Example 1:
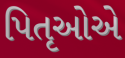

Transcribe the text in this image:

પિતૃઓએ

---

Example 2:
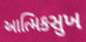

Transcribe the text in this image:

આત્મિકસુખ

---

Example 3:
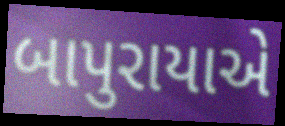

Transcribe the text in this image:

બાપુરાયાએ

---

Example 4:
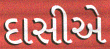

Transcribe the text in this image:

દાસીએ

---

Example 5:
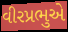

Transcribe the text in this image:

વીરપ્રભુએ